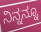
ನಿನ್ನನ್ನೂ